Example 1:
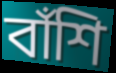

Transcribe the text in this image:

বাঁশি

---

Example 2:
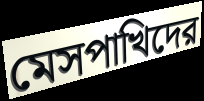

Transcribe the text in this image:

মেসপাখিদের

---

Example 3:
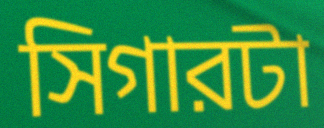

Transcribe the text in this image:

সিগারটা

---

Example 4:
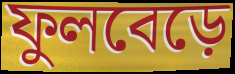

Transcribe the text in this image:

ফুলবেড়ে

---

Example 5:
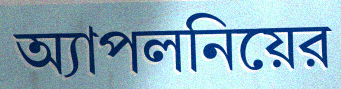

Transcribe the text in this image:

অ্যাপলনিয়ের